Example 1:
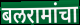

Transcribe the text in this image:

बलरामांचा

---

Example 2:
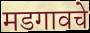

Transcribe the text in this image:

मडगावचे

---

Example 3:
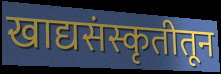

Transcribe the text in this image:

खाद्यसंस्कृतीतून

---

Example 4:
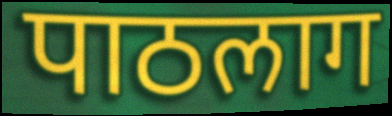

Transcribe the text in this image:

पाठलाग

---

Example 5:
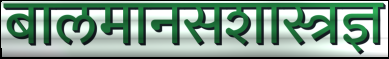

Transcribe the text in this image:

बालमानसशास्त्रज्ञ